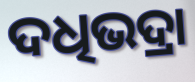
ଦଧିଭଦ୍ରା